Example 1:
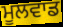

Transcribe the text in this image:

ਮੂਲਵਾਡ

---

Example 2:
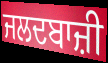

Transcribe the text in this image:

ਜਲਦਬਾਜ਼ੀ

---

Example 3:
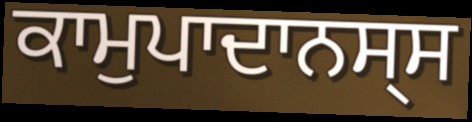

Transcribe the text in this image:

ਕਾਮੁਪਾਦਾਨਸ੍ਸ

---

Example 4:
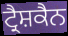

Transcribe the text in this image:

ਟ੍ਰੈਸ਼ਕੈਨ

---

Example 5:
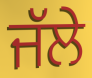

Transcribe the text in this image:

ਜੱਲੇ